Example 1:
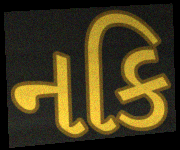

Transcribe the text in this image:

નકિ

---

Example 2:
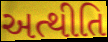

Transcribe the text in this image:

અત્થીતિ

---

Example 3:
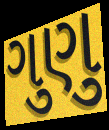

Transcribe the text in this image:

ગુણુ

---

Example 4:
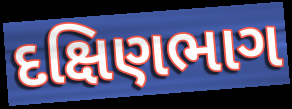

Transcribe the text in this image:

દક્ષિણભાગ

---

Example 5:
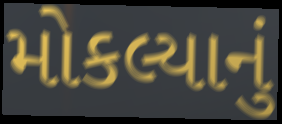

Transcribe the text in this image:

મોકલ્યાનું